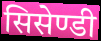
सिसेण्डी